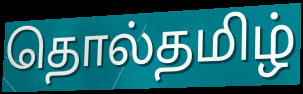
தொல்தமிழ்